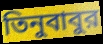
তিনুবাবুর